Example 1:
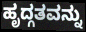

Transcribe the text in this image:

ಹೃದ್ಗತವನ್ನು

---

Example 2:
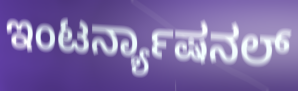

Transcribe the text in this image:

ಇಂಟರ್ನ್ಯಾಷನಲ್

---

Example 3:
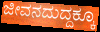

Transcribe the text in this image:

ಜೀವನದುದ್ದಕ್ಕೂ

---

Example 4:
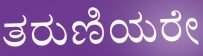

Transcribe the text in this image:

ತರುಣಿಯರೇ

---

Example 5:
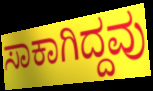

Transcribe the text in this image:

ಸಾಕಾಗಿದ್ದವು